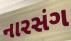
નારસંગ